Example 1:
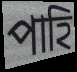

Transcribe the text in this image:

পাহি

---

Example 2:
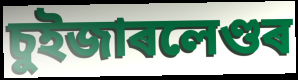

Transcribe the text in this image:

চুইজাৰলেণ্ডৰ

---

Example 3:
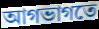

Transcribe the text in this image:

আগভাগতে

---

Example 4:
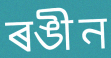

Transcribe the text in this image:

ৰঙীন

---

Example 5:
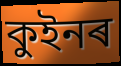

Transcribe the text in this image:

কুইনৰ